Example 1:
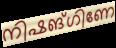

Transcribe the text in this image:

നിഷങ്ഗിണേ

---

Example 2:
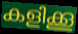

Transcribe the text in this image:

കളിക്കൂ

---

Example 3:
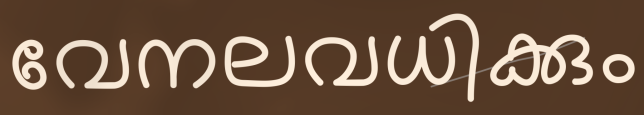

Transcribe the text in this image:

വേനലവധിക്കും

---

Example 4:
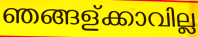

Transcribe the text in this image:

ഞങ്ങള്ക്കാവില്ല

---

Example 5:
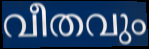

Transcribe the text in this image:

വീതവും